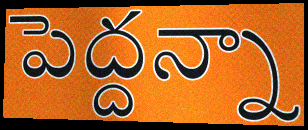
పెద్దన్నా